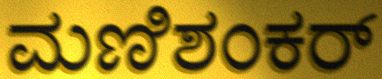
ಮಣಿಶಂಕರ್